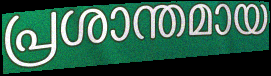
പ്രശാന്തമായ